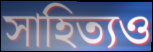
সাহিত্যও